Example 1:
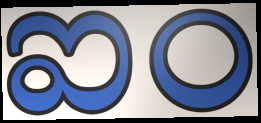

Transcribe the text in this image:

ఐం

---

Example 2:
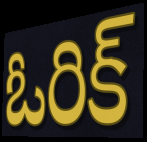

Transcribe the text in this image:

ఓరిక్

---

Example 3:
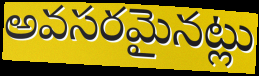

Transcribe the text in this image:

అవసరమైనట్లు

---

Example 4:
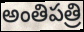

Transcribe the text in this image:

అంతిపత్రి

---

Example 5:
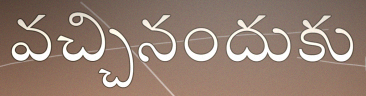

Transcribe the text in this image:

వచ్చినందుకు